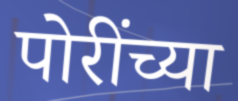
पोरींच्या